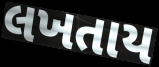
લખતાય